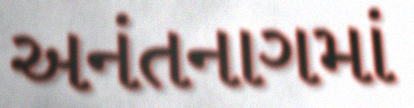
અનંતનાગમાં